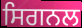
ਸਿਗਨਲ